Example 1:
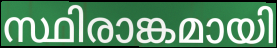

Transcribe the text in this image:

സ്ഥിരാങ്കമായി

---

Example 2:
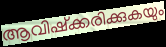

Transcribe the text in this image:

ആവിഷ്ക്കരിക്കുകയും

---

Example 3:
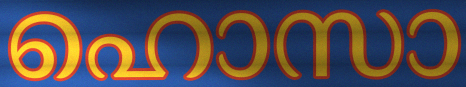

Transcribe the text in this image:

ഹൊസാ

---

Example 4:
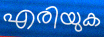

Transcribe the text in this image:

എരിയുക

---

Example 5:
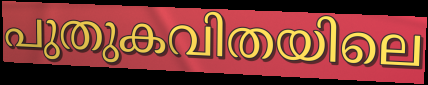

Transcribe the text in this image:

പുതുകവിതയിലെ